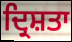
ਦ੍ਰਿਸ਼ਤਾ